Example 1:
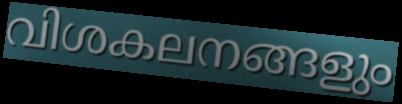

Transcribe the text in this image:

വിശകലനങ്ങളും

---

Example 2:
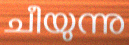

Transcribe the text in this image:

ചീയുന്നു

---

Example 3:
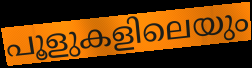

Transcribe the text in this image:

പൂളുകളിലെയും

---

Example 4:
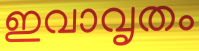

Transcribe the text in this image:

ഇവാവൃതം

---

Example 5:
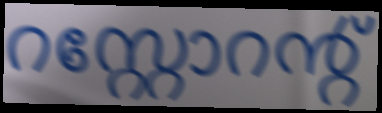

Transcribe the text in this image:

റസ്റ്റോറന്റ്